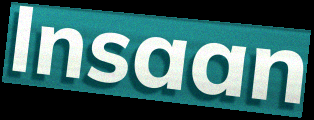
Insaan